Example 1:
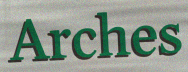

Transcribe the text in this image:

Arches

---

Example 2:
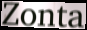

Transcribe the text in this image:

Zonta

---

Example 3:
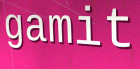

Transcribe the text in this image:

gamit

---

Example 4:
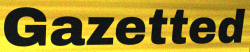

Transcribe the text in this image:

Gazetted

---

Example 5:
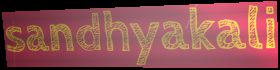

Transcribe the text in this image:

sandhyakali